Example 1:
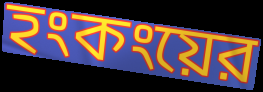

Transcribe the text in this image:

হংকংয়ের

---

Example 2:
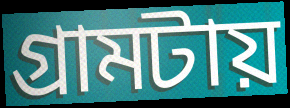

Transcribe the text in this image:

গ্রামটায়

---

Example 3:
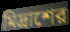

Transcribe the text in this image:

মিদ্রাশের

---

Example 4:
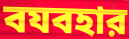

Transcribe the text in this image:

বযবহার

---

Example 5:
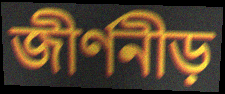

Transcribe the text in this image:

জীর্ণনীড়